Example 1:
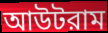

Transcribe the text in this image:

আউটরাম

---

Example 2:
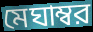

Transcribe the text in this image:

মেঘাম্বর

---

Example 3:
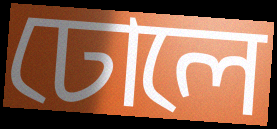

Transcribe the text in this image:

ঢোলে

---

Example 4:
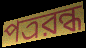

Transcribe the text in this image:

পত্ররন্ধ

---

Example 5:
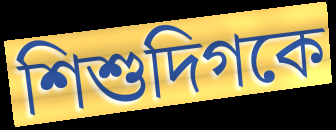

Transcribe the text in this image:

শিশুদিগকে